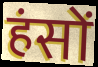
हंसों